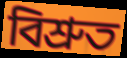
বিশ্রুত